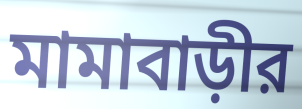
মামাবাড়ীর